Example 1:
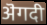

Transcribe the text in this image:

ऄगदी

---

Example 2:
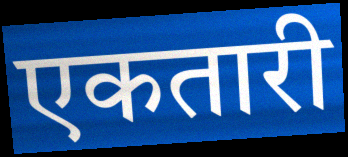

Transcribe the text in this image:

एकतारी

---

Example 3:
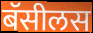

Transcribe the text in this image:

बॅसीलस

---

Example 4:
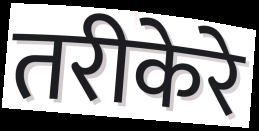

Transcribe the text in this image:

तरीकेरे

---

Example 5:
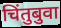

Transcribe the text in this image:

चिंतुबुवा